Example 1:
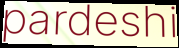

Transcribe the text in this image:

pardeshi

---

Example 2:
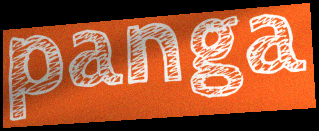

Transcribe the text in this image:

panga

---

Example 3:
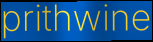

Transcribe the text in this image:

prithwine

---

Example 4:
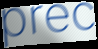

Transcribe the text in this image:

prec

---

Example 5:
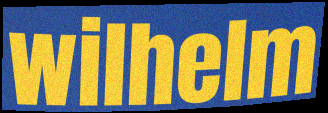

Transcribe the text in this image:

wilhelm